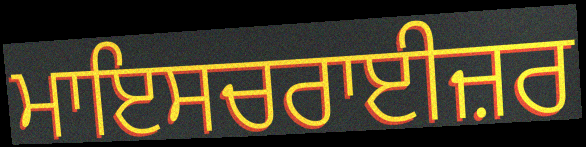
ਮਾਇਸਚਰਾਈਜ਼ਰ